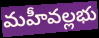
మహీవల్లభు